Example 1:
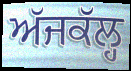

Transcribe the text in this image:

ਅੱਜਕੱਲ੍ਹ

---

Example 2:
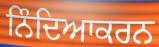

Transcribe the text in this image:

ਨਿੰਦਿਆਕਰਨ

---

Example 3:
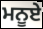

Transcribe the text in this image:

ਮਨੂਏ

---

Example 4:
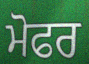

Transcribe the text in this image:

ਮੋਫਰ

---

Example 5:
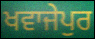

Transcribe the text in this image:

ਖਵਾਜੇਪੁਰ